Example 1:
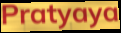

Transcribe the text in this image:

Pratyaya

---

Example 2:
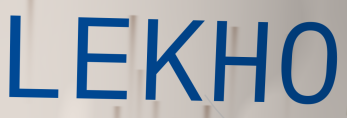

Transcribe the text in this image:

LEKHO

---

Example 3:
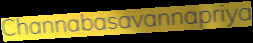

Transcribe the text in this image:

Channabasavannapriya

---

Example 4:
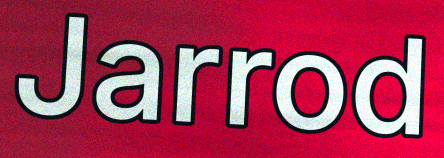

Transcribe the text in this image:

Jarrod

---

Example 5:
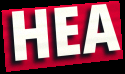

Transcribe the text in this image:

HEA